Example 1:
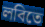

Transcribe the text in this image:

লবিতে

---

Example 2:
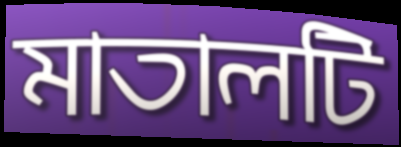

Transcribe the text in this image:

মাতালটি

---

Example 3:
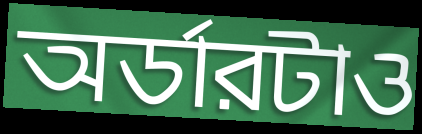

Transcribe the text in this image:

অর্ডারটাও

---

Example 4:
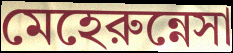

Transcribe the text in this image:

মেহেরুন্নেসা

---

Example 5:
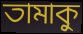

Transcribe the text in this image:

তামাকু